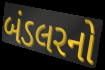
બંડલરનો